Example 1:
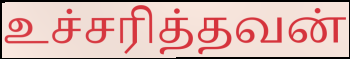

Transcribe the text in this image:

உச்சரித்தவன்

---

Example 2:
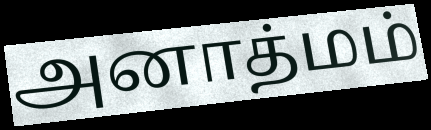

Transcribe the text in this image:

அனாத்மம்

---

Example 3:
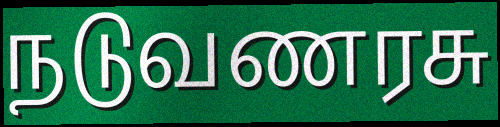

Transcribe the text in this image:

நடுவணரசு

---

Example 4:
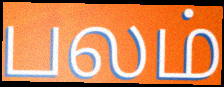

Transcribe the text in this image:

பலம்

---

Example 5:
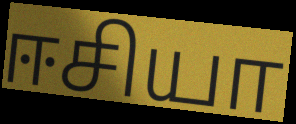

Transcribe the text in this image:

ஈசியா